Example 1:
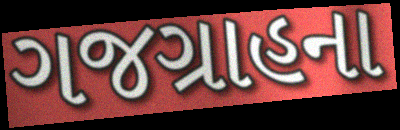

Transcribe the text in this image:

ગજગ્રાહના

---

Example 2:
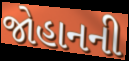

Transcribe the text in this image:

જોહાનની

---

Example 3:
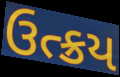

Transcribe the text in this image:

ઉત્ક્રય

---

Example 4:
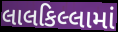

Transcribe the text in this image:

લાલકિલ્લામાં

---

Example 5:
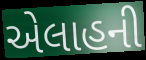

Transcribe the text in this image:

એલાહની